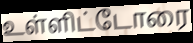
உள்ளிட்டோரை